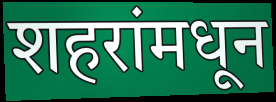
शहरांमधून